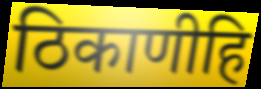
ठिकाणीहि